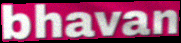
bhavan